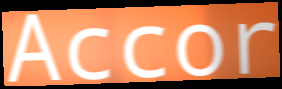
Accor